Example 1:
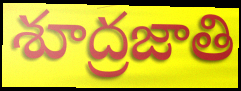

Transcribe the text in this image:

శూద్రజాతి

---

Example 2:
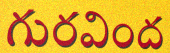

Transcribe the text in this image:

గురవింద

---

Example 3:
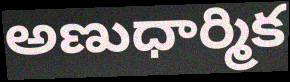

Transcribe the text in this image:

అణుధార్మిక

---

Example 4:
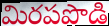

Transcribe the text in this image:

మిరపపొడి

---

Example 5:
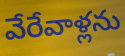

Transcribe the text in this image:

వేరేవాళ్లను